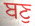
ਬਣੁ